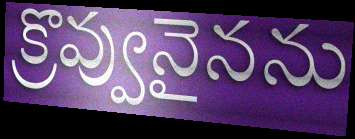
క్రొవ్వునైనను